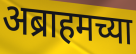
अब्राहमच्या